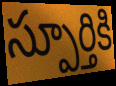
స్పూర్తికి